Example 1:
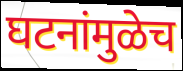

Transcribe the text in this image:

घटनांमुळेच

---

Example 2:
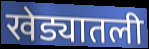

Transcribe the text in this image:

खेड्यातली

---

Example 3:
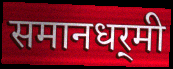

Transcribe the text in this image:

समानधर्मी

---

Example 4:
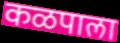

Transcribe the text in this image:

कळपाला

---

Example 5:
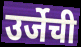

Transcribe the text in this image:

उर्जेची